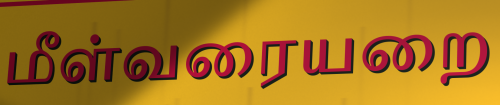
மீள்வரையறை